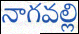
నాగవల్లి